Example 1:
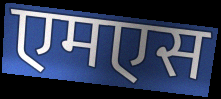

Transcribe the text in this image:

एमएस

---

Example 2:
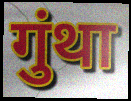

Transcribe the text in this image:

गुंथा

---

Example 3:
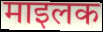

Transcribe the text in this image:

माइलक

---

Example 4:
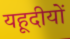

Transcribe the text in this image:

यहूदीयों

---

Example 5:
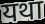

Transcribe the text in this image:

यथा